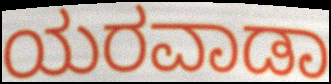
ಯರವಾಡಾ